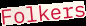
Folkers